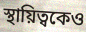
স্থায়িত্বকেও